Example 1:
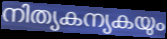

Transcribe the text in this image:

നിത്യകന്യകയും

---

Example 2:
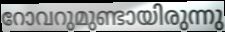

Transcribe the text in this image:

റോവറുമുണ്ടായിരുന്നു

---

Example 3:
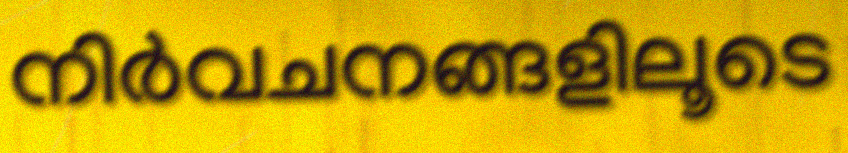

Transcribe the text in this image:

നിർവചനങ്ങളിലൂടെ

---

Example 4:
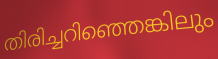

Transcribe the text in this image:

തിരിച്ചറിഞ്ഞെങ്കിലും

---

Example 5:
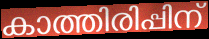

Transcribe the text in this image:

കാത്തിരിപ്പിന്